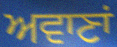
ਅਵਾਣਾਂ